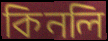
কিনলি